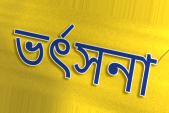
ভৰ্ৎসনা